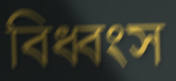
বিধ্বংস